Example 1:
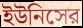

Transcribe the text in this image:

ইউনিসের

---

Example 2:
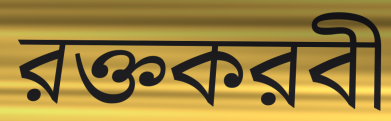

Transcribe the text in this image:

রক্তকরবী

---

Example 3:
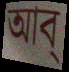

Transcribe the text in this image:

আব্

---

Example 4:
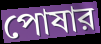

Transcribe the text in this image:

পোষার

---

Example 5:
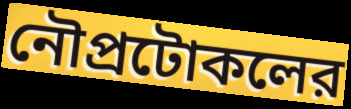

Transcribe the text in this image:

নৌপ্রটোকলের